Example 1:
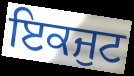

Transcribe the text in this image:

ਇਕਜੁਟ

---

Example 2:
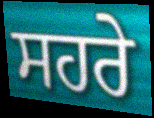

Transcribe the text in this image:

ਸਹਰੇ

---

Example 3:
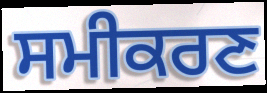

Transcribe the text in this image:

ਸਮੀਕਰਣ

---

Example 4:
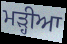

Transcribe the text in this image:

ਮੜ੍ਹੀਆ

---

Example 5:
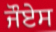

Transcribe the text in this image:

ਜੌਏਸ